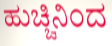
ಹುಚ್ಚಿನಿಂದ